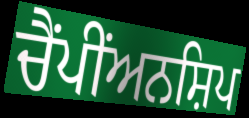
ਚੈਂਪੀਂਅਨਸ਼ਿਪ